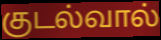
குடல்வால்